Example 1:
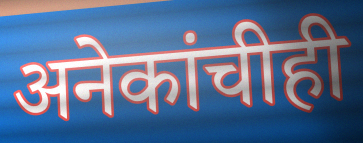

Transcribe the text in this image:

अनेकांचीही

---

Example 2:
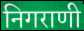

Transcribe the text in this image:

निगराणी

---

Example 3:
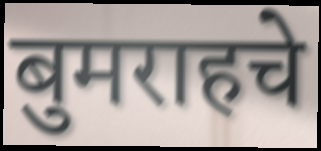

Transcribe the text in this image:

बुमराहचे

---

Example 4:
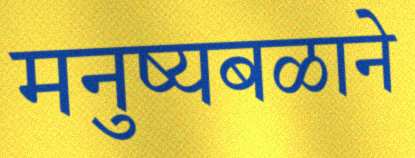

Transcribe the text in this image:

मनुष्यबळाने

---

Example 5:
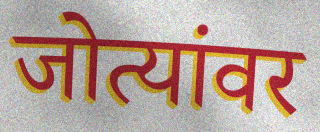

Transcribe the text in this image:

जोत्यांवर